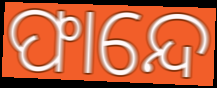
ଫାନ୍ଦେ